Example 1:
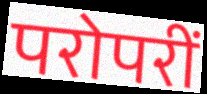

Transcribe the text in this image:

परोपरीं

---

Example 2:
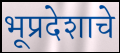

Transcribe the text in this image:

भूप्रदेशाचे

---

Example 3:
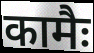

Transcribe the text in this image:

कामैः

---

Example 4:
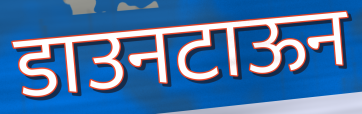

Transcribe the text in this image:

डाउनटाऊन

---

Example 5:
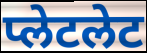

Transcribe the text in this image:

प्लेटलेट